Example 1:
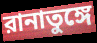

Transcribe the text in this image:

রানাতুঙ্গে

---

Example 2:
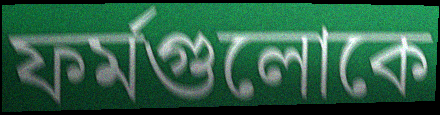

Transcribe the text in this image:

ফর্মগুলোকে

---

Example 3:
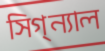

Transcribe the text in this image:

সিগ্‌ন্যাল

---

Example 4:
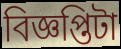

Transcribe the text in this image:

বিজ্ঞপ্তিটা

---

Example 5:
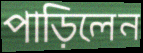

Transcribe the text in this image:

পাড়িলেন